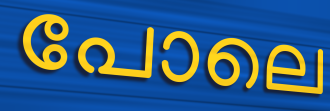
പോലെ